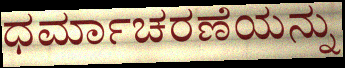
ಧರ್ಮಾಚರಣೆಯನ್ನು